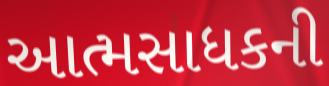
આત્મસાધકની